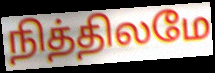
நித்திலமே